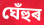
ঘেঁহুৰ